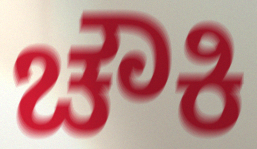
ಚೌಕಿ